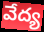
వేద్య